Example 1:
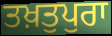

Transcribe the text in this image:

ਤਖ਼ਤੁਪੁਰਾ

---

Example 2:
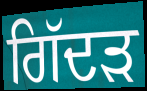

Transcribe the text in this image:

ਗਿੱਦਡ਼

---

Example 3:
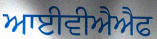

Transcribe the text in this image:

ਆਈਵੀਐਐਫ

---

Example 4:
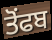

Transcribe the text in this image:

ਤੋਂਫਬ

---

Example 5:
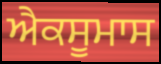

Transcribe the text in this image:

ਐਕਸੂਮਾਸ